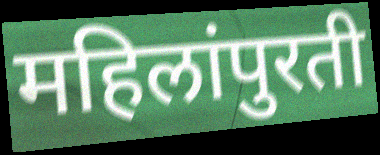
महिलांपुरती